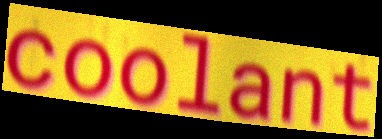
coolant